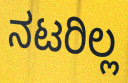
ನಟರಿಲ್ಲ